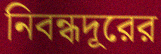
নিবন্ধদূরের